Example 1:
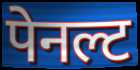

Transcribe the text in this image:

पेनल्ट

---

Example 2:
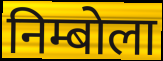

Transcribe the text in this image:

निम्बोला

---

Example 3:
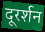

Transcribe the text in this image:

दूरर्शन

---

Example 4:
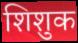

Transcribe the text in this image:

शिशुक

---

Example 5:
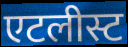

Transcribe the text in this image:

एटलीस्ट